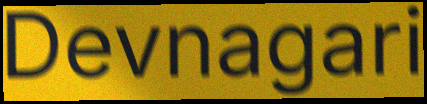
Devnagari